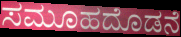
ಸಮೂಹದೊಡನೆ